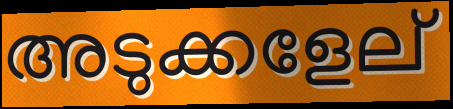
അടുക്കളേല്